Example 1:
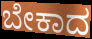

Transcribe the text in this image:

ಬೇಕಾದ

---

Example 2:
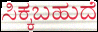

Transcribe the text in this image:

ಸಿಕ್ಕಬಹುದೆ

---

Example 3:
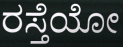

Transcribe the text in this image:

ರಸ್ತೆಯೋ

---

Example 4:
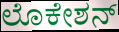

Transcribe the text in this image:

ಲೊಕೇಶನ್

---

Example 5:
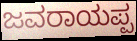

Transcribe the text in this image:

ಜವರಾಯಪ್ಪ